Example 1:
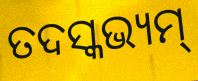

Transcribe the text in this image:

ତଦସ୍କଭ୍ୟମ୍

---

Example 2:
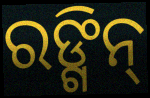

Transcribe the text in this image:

ରଙ୍ଗିନ୍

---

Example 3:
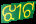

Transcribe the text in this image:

ଝୀଟ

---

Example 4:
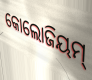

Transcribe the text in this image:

କୋଲୋଜିୟମ୍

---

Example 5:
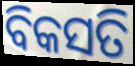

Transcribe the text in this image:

ବିକସତି